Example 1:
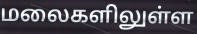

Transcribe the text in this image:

மலைகளிலுள்ள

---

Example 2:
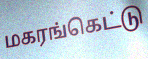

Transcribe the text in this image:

மகரங்கெட்டு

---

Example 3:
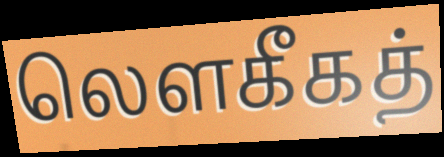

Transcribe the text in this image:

லௌகீகத்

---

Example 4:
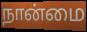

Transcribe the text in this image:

நான்மை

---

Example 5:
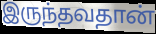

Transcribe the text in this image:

இருந்தவதான்